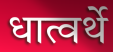
धात्वर्थे